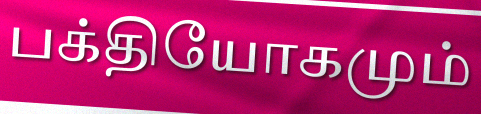
பக்தியோகமும்